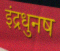
इंद्रधुनष